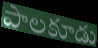
పాలకూడు